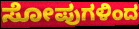
ಸೋಪುಗಳಿಂದ